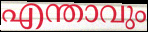
എന്താവും